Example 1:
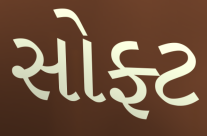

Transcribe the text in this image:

સોફ્ટ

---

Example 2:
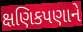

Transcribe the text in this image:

ક્ષણિકપણાને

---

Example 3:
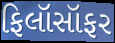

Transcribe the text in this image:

ફિલૉસૉફર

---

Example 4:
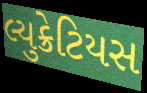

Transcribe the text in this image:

લ્યુક્રેટિયસ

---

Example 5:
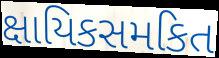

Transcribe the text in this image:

ક્ષાયિકસમકિત